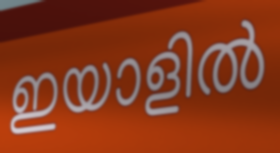
ഇയാളിൽ